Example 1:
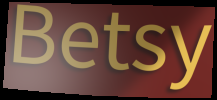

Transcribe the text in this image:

Betsy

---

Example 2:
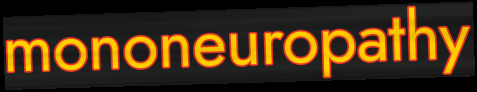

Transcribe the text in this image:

mononeuropathy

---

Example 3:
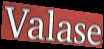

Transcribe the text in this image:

Valase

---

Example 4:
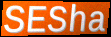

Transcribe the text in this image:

SESha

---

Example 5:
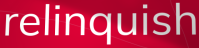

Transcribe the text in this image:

relinquish